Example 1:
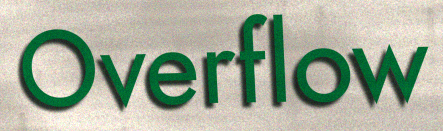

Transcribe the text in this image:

Overflow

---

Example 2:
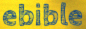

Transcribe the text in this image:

ebible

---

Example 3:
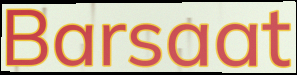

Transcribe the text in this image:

Barsaat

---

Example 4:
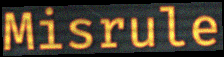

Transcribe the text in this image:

Misrule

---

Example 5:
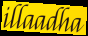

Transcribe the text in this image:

illaadha